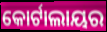
କୋର୍ଟାଲାୟର